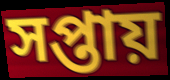
সপ্তায়